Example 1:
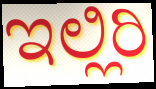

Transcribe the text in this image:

ಇಲ್ಲಿರಿ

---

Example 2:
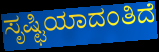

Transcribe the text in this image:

ಸೃಷ್ಟಿಯಾದಂತಿದೆ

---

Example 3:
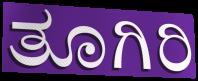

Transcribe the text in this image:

ತೂಗಿರಿ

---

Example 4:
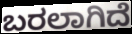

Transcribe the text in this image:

ಬರಲಾಗಿದೆ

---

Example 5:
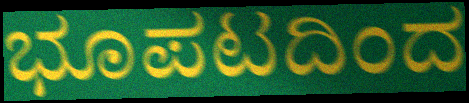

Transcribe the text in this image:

ಭೂಪಟದಿಂದ